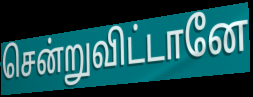
சென்றுவிட்டானே